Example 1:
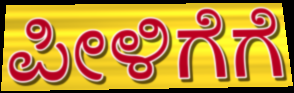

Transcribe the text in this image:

ಪೀಳಿಗೆಗೆ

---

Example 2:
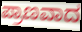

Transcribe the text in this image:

ಪ್ರಾಣವಾದ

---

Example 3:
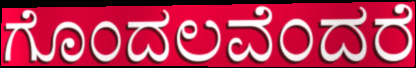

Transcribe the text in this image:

ಗೊಂದಲವೆಂದರೆ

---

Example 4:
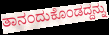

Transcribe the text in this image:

ತಾನಂದುಕೊಂಡದ್ದನ್ನು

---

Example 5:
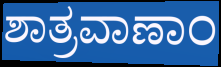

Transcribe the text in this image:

ಶಾತ್ರವಾಣಾಂ